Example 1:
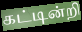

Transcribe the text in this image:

கட்டின்றி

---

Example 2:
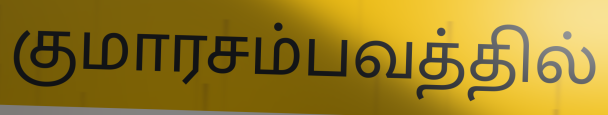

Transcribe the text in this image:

குமாரசம்பவத்தில்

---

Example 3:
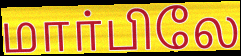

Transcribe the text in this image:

மார்பிலே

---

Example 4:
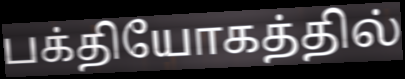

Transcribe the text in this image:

பக்தியோகத்தில்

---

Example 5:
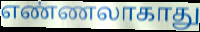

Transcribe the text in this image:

எண்ணலாகாது